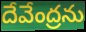
దేవేంద్రను